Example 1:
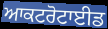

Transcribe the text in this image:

ਆਕਟਰੋਟਾਈਡ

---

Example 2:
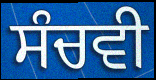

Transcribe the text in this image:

ਸੰਚਵੀ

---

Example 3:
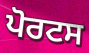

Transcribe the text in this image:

ਪੋਰਟਸ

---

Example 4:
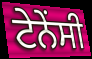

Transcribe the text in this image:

ਟੇਨੇਂਸੀ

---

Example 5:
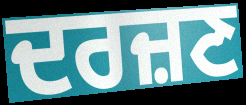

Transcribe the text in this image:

ਦਰਜ਼ਣ